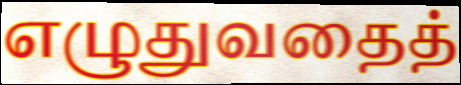
எழுதுவதைத்